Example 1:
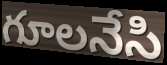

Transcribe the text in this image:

గూలనేసి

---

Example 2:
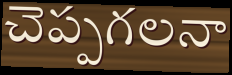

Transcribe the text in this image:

చెప్పగలనా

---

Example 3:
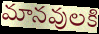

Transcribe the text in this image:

మానవులకి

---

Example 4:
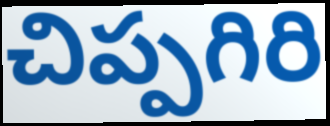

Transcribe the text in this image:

చిప్పగిరి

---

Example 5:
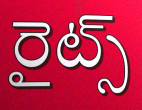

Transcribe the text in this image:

రైట్స్